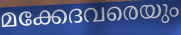
മക്കേദവരെയും